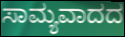
ಸಾಮ್ಯವಾದದ